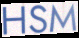
HSM